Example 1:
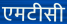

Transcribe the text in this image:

एमटीसी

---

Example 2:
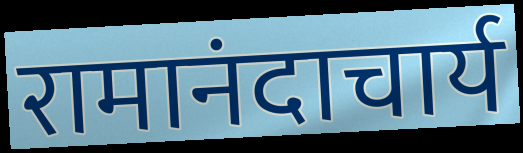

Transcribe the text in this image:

रामानंदाचार्य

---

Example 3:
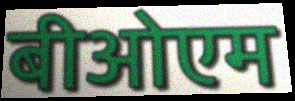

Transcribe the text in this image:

बीओएम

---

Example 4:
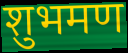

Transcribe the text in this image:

शुभमण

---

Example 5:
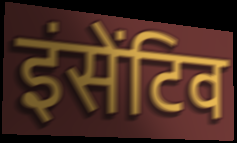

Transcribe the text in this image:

इंसेंटिव